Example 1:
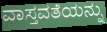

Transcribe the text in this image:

ವಾಸ್ತವತೆಯನ್ನು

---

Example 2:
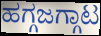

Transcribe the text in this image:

ಹಗ್ಗಜಗ್ಗಾಟ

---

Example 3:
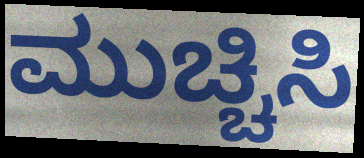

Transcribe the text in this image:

ಮುಚ್ಚಿಸಿ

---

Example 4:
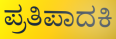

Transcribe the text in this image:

ಪ್ರತಿಪಾದಕಿ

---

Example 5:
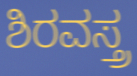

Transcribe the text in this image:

ಶಿರವಸ್ತ್ರ